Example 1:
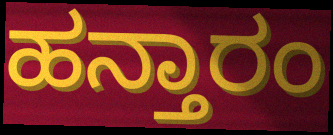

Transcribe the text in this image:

ಹನ್ತಾರಂ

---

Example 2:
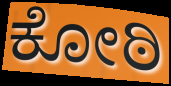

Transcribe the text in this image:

ಕೋಠಿ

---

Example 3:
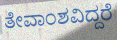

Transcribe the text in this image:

ತೇವಾಂಶವಿದ್ದರೆ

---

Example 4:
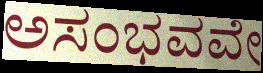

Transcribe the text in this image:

ಅಸಂಭವವೇ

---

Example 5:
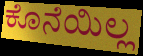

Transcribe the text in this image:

ಕೊನೆಯಿಲ್ಲ